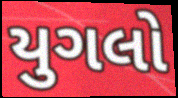
યુગલો